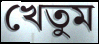
খেতুম